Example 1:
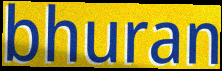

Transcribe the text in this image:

bhuran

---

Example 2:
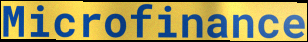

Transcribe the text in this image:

Microfinance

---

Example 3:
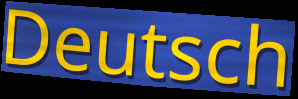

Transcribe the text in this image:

Deutsch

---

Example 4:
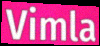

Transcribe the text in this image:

Vimla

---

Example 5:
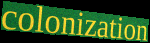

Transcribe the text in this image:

colonization